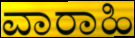
ವಾರಾಹಿ